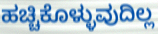
ಹಚ್ಚಿಕೊಳ್ಳುವುದಿಲ್ಲ